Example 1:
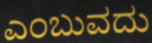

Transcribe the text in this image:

ಎಂಬುವದು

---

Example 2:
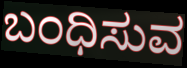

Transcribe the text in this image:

ಬಂಧಿಸುವ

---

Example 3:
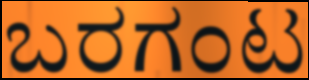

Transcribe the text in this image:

ಬರಗಂಟ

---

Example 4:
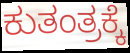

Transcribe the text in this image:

ಕುತಂತ್ರಕ್ಕೆ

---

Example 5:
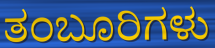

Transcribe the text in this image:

ತಂಬೂರಿಗಳು